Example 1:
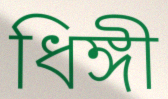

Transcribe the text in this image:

ধিঙ্গী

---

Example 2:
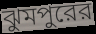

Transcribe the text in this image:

ঝুমপুরের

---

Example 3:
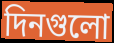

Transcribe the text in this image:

দিনগুলো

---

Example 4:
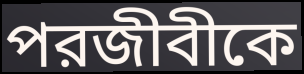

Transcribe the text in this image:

পরজীবীকে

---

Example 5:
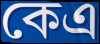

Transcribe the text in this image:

কেএ